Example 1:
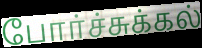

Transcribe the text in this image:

போர்ச்சுக்கல்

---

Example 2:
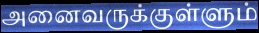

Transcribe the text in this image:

அனைவருக்குள்ளும்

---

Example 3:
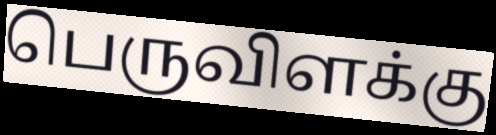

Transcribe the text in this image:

பெருவிளக்கு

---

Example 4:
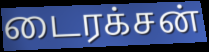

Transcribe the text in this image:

டைரக்சன்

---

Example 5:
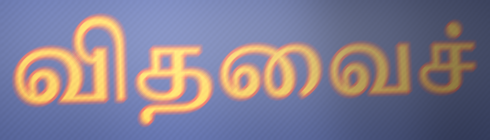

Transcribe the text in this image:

விதவைச்